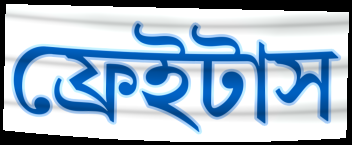
ফ্রেইটাস